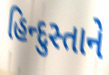
હિન્દુસ્તાને